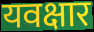
यवक्षार